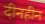
दीनहीन